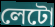
লেটো